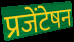
प्रजेंटेषन